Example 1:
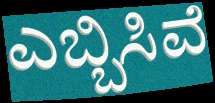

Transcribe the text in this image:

ಎಬ್ಬಿಸಿವೆ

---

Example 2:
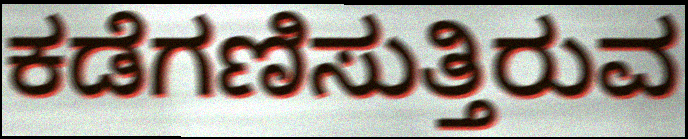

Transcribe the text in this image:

ಕಡೆಗಣಿಸುತ್ತಿರುವ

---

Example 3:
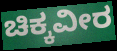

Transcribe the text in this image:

ಚಿಕ್ಕವೀರ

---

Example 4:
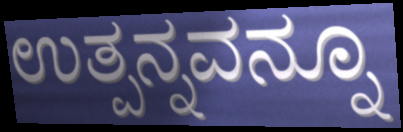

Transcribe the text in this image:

ಉತ್ಪನ್ನವನ್ನೂ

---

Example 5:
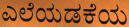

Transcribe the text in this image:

ಎಲೆಯಡಕೆಯ